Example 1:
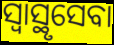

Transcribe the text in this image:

ସ୍ୱାସ୍ଥୃସେବା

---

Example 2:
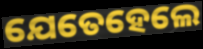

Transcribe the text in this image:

ଯେତେହେଲେ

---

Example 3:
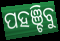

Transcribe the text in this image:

ପହଞ୍ଚିବୁ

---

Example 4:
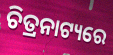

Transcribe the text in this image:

ଚିତ୍ରନାଟ୍ୟରେ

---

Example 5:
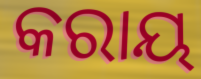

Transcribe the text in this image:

କରାୟ